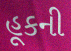
હૂકની